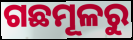
ଗଛମୂଳରୁ